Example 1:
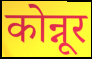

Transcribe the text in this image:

कोन्नूर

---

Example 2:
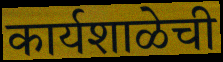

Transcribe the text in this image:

कार्यशाळेची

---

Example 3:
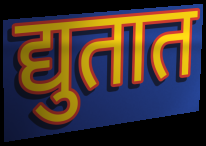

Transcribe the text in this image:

द्युतात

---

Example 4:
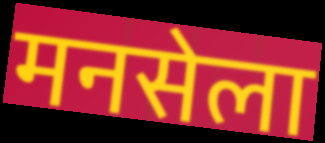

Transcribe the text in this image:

मनसेला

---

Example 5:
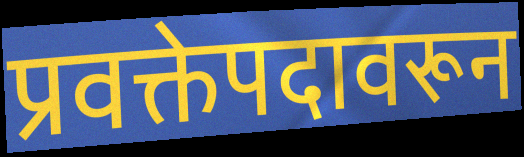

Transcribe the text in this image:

प्रवक्तेपदावरून